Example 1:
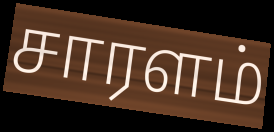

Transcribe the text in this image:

சாரளம்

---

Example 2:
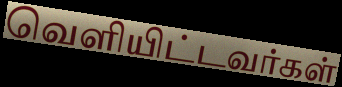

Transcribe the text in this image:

வெளியிட்டவர்கள்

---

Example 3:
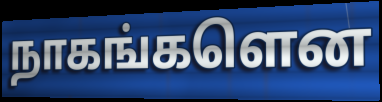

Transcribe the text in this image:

நாகங்களென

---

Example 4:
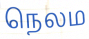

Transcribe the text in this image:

நெலம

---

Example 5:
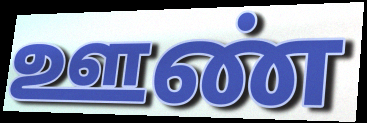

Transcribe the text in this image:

ஊண்